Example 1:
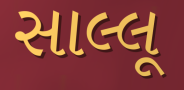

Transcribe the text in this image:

સાલ્લૂ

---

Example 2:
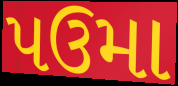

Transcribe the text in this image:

પઉમા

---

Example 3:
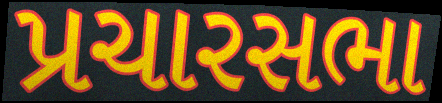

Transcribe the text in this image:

પ્રચારસભા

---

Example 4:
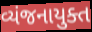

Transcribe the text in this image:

વ્યંજનાયુક્ત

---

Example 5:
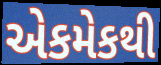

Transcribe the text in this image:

એકમેકથી